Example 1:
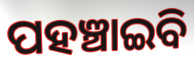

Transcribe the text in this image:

ପହଞ୍ଚାଇବି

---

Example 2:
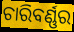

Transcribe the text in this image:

ଚାରିବର୍ଣ୍ଣର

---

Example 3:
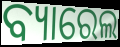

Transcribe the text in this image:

ବ୍ୟାରେଲ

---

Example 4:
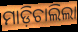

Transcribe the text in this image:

ମାଡ଼ିଚାଲିଲା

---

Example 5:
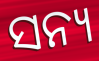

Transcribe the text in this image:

ସନ୍ୟ